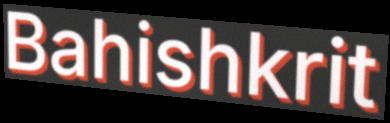
Bahishkrit